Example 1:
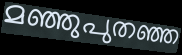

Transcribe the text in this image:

മഞ്ഞുപുതഞ്ഞ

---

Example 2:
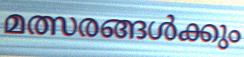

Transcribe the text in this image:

മത്സരങ്ങൾക്കും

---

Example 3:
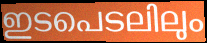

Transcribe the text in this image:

ഇടപെടലിലും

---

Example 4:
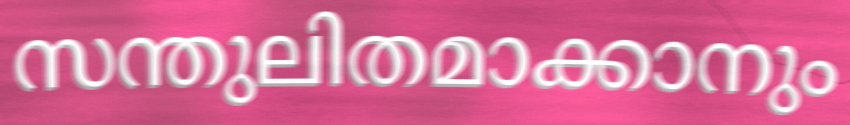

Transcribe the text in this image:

സന്തുലിതമാക്കാനും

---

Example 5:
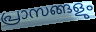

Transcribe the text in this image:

പ്രാസങ്ങളും